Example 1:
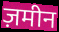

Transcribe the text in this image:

ज़मीन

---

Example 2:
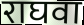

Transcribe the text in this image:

राघवा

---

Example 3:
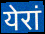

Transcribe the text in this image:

येरां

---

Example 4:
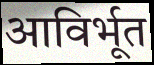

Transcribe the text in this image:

आविर्भूत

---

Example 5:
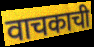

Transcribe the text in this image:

वाचकाची